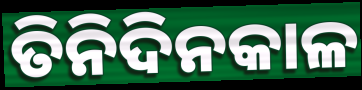
ତିନିଦିନକାଳ